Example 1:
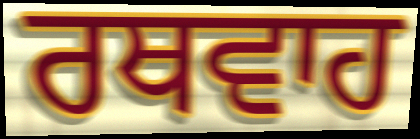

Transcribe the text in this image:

ਰਥਵਾਹ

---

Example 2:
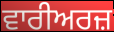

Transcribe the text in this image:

ਵਾਰੀਅਰਜ਼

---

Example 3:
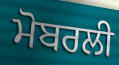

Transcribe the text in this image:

ਮੋਬਰਲੀ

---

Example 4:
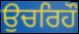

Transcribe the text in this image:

ਉਚਰਿਹੌ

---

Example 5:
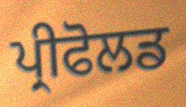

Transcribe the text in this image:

ਪ੍ਰੀਫੋਲਡ